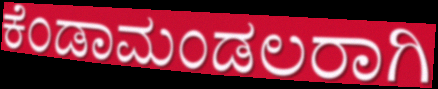
ಕೆಂಡಾಮಂಡಲರಾಗಿ